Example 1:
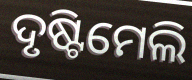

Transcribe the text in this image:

ଦୃଷ୍ଟିମେଲି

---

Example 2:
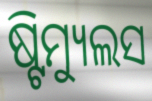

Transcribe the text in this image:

ଷ୍ଟିମ୍ୟୁଲସ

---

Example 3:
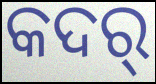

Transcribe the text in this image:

କଦର୍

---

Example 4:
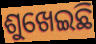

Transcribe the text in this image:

ଶୁଖେଇଛି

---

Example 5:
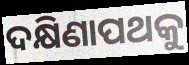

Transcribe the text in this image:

ଦକ୍ଷିଣାପଥକୁ